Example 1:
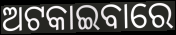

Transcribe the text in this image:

ଅଟକାଇବାରେ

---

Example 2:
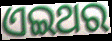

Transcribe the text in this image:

ଏଇଥର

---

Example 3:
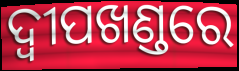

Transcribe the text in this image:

ଦ୍ଵୀପଖଣ୍ଡରେ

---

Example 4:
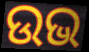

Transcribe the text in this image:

ଉଭ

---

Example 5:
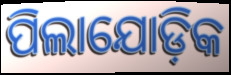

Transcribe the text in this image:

ପିଲାଯୋଡ଼ିକ